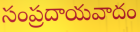
సంప్రదాయవాదం